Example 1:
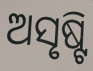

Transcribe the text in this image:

ଅସୃଷ୍ଟି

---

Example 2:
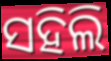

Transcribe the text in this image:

ସହିଲି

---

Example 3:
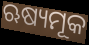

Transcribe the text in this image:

ଋଷ୍ୟମୂକ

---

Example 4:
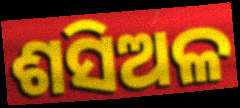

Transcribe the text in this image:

ଶସିଅଳ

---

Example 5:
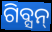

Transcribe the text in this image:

ଗିବ୍ସନ୍